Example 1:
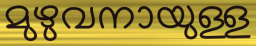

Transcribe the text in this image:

മുഴുവനായുള്ള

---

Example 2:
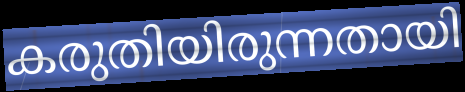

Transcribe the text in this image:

കരുതിയിരുന്നതായി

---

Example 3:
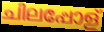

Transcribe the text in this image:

ചിലപ്പോള്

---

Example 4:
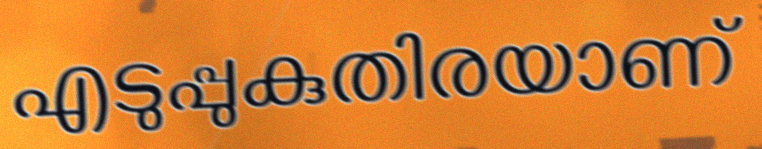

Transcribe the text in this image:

എടുപ്പുകുതിരയാണ്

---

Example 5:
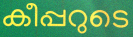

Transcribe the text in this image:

കീപ്പറുടെ